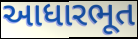
આધારભૂત